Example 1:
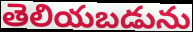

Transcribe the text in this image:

తెలియబడును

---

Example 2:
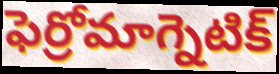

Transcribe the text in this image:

ఫెర్రోమాగ్నెటిక్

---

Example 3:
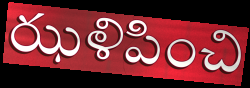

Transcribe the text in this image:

ఝళిపించి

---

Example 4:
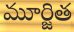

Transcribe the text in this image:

మూర్జిత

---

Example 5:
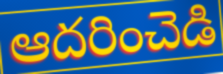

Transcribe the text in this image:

ఆదరించెడి